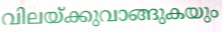
വിലയ്ക്കുവാങ്ങുകയും